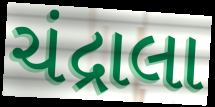
ચંદ્રાલા